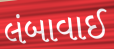
લંબાવાઈ